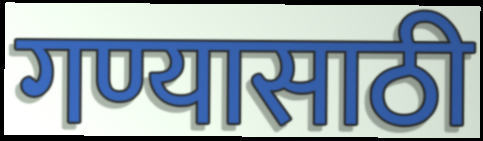
गण्यासाठी